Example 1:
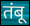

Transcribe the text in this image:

तंबू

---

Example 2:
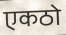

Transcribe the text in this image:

एकठो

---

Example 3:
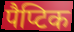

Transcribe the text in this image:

पैप्टिक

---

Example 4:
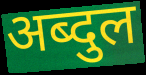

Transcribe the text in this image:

अब्दुल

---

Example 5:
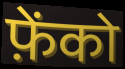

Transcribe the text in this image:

फ़ेंको